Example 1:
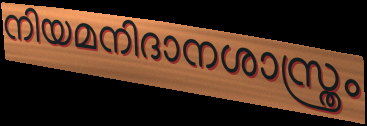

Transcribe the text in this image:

നിയമനിദാനശാസ്ത്രം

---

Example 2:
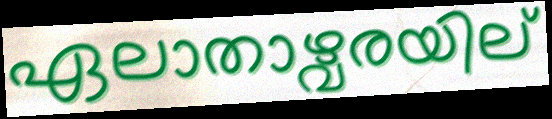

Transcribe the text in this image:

ഏലാതാഴ്വരയില്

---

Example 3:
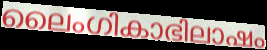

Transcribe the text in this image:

ലൈംഗികാഭിലാഷം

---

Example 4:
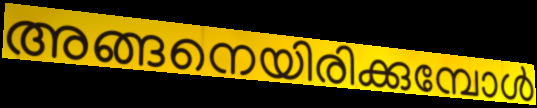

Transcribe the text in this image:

അങ്ങനെയിരിക്കുമ്പോൾ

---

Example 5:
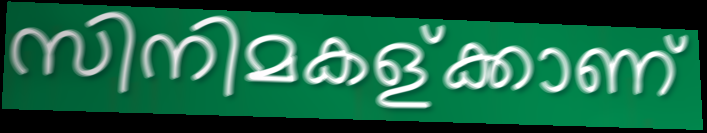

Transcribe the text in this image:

സിനിമകള്ക്കാണ്